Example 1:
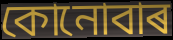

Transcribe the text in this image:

কোনোবাৰ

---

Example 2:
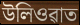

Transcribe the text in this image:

উলিওৱাত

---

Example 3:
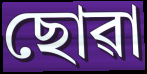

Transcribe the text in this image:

ছোৱা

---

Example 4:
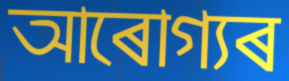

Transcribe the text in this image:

আৰোগ্যৰ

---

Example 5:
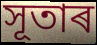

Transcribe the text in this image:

সূতাৰ